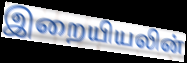
இறையியலின்